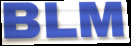
BLM